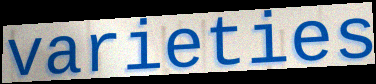
varieties